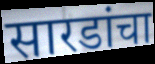
सारडांचा